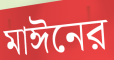
মাঈনের